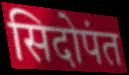
सिदोपंत